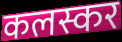
कलस्कर